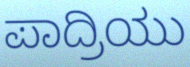
ಪಾದ್ರಿಯು